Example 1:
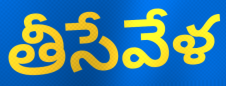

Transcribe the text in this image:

తీసేవేళ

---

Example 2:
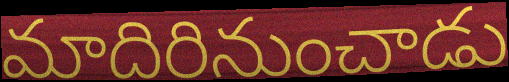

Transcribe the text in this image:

మాదిరినుంచాడు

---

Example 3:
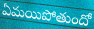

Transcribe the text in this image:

ఏమయిపోతుందో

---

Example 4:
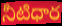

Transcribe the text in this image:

నీటిధార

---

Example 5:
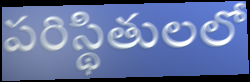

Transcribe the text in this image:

పరిస్థితులలో